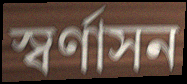
স্বর্ণাসন